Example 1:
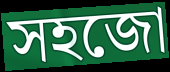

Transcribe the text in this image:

সহজো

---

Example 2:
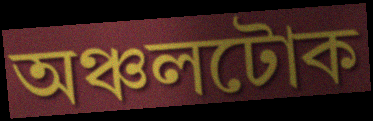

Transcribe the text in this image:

অঞ্চলটোক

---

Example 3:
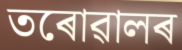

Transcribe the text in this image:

তৰোৱালৰ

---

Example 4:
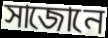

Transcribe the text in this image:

সাজোনে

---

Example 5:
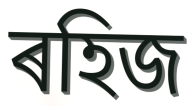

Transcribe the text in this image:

ৰহিজ